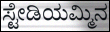
ಸ್ಟೇಡಿಯಮ್ಮಿನ